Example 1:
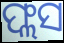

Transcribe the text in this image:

ଫ୍ଲସ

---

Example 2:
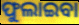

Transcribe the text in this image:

ଫୁଲାଇବା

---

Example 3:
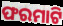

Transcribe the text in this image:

ଫରମାଟି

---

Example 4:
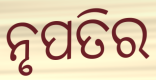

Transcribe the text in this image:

ନୃପତିର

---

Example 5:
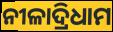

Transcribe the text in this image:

ନୀଳାଦ୍ରିଧାମ